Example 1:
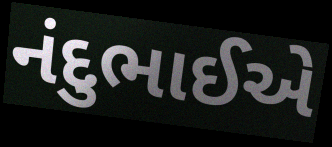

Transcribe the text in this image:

નંદુભાઈએ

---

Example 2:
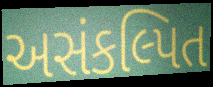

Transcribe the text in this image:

અસંકલ્પિત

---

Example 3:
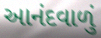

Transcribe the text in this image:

આનંદવાળું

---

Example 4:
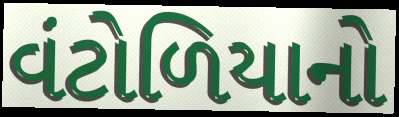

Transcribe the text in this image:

વંટોળિયાનો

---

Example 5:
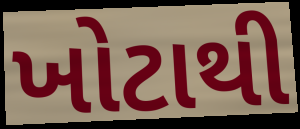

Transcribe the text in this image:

ખોટાથી